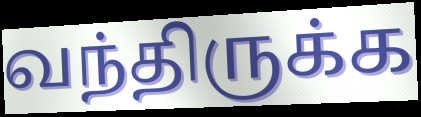
வந்திருக்க